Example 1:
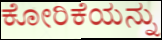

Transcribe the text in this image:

ಕೋರಿಕೆಯನ್ನು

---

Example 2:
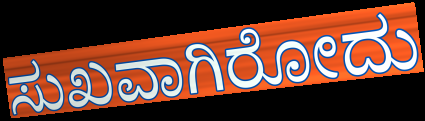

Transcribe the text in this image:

ಸುಖವಾಗಿರೋದು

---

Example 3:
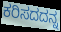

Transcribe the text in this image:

ಕರಿಸದದನ್ನ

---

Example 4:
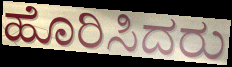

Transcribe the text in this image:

ಹೊರಿಸಿದರು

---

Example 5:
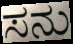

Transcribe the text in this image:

ಸನು